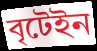
বৃটেইন